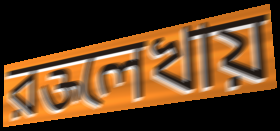
রক্তলেখায়